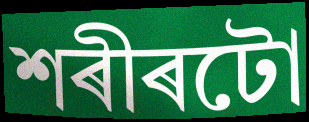
শৰীৰটো